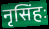
नृसिंहः